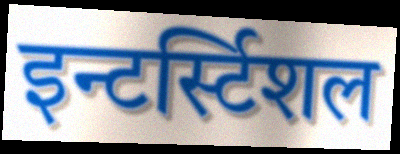
इन्टर्स्टिशल